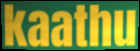
kaathu